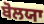
ਬੋਲਯਾ